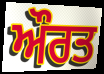
ਔਰਤ